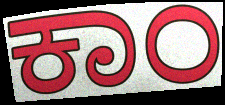
ಕಾಂ